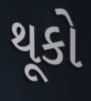
થૂકો